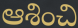
ఆశించి